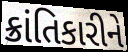
ક્રાંતિકારીને